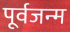
पूर्वजन्म